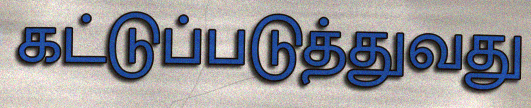
கட்டுப்படுத்துவது